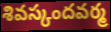
శివస్కందవర్మ